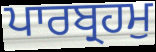
ਪਾਰਬ੍ਰਹਮੁ